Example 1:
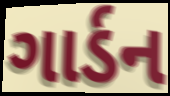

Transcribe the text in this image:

ગાર્ડન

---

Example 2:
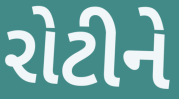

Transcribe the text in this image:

રોટીને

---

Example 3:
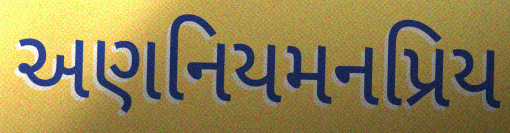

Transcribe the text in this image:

અણનિયમનપ્રિય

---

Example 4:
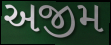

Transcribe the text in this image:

અજીમ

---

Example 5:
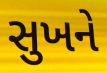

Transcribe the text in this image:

સુખને